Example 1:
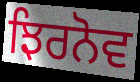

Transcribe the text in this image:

ਝਿਰਨੋਵ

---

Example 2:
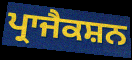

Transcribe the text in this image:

ਪ੍ਰਾਜੈਕਸ਼ਨ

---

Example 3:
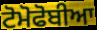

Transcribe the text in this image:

ਟੋਮੋਫੋਬੀਆ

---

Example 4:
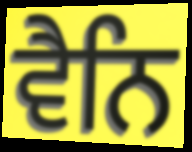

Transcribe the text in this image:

ਵੈਨਿ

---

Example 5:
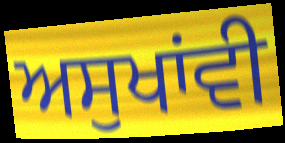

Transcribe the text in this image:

ਅਸੁਖਾਂਵੀ